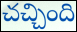
చచ్చింది